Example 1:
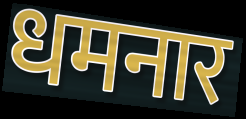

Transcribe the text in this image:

धमनार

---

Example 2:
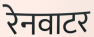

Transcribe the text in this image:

रेनवाटर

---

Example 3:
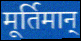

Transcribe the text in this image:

मूर्तिमान्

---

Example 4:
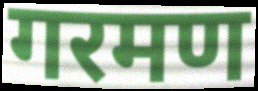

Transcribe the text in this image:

गरमण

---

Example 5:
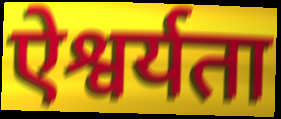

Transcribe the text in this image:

ऐश्वर्यता